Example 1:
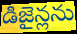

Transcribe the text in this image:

డిజైన్లను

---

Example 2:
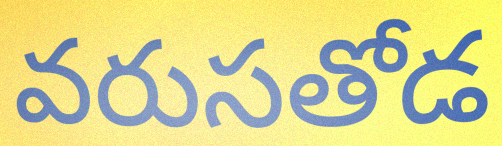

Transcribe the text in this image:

వరుసతోడ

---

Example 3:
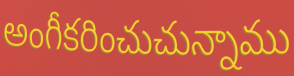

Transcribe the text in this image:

అంగీకరించుచున్నాము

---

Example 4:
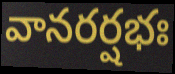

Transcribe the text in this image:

వానరర్షభః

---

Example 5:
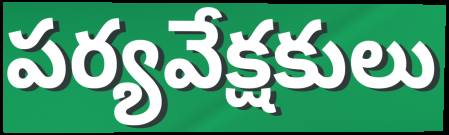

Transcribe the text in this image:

పర్యవేక్షకులు